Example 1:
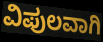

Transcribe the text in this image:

ವಿಪುಲವಾಗಿ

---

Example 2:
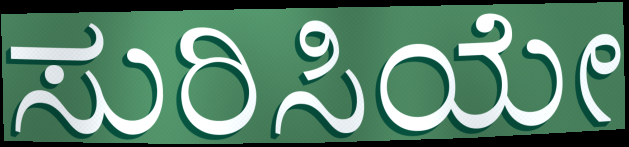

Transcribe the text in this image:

ಸುರಿಸಿಯೇ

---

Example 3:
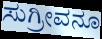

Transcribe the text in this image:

ಸುಗ್ರೀವನೂ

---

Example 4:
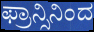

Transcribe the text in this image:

ಫ್ರಾನ್ಸಿನಿಂದ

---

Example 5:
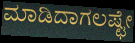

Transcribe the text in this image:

ಮಾಡಿದಾಗಲಷ್ಟೇ